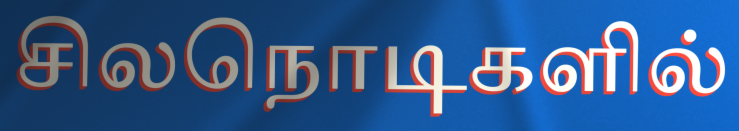
சிலநொடிகளில்